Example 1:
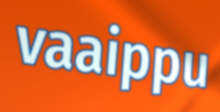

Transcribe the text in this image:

vaaippu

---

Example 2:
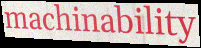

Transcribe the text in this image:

machinability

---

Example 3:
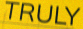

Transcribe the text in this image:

TRULY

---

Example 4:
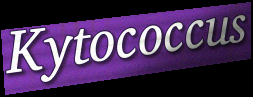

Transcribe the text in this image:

Kytococcus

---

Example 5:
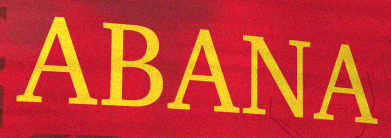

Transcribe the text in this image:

ABANA